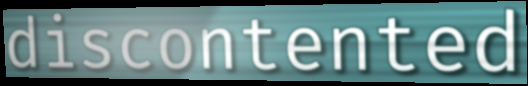
discontented